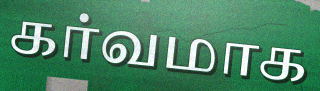
கர்வமாக